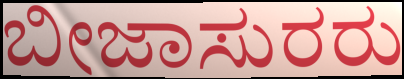
ಬೀಜಾಸುರರು